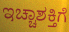
ಇಚ್ಚಾಶಕ್ತಿಗೆ